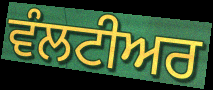
ਵੰਲਟੀਅਰ